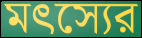
মৎস্যের